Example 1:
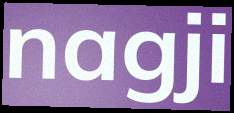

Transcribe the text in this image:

nagji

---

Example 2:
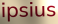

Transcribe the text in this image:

ipsius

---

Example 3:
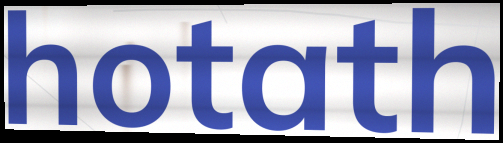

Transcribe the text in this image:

hotath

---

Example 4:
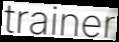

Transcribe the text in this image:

trainer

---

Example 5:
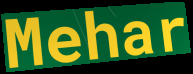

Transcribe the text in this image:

Mehar